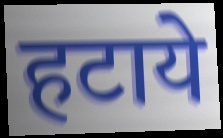
हटाये